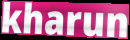
kharun